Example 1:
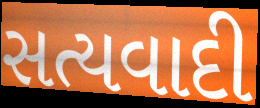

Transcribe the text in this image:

સત્યવાદી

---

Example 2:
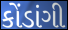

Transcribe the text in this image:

કોંડાંગી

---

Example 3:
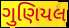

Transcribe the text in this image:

ગુણિયલ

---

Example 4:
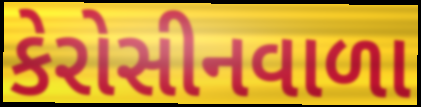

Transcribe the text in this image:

કેરોસીનવાળા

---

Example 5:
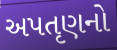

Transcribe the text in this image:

અપતૃણનો